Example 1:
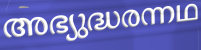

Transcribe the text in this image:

അഭ്യുദ്ധരന്നഥ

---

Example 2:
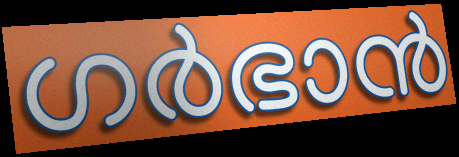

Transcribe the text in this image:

ഗർഭാൻ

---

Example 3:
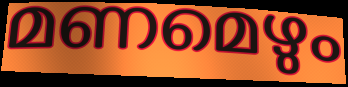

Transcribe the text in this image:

മണമെഴും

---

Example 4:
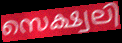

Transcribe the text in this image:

സെക്ഷ്വലി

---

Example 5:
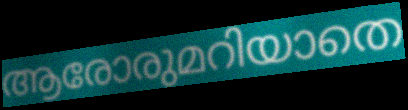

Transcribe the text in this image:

ആരോരുമറിയാതെ